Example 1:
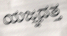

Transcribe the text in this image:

ಯಜ್ಞದತ್ತ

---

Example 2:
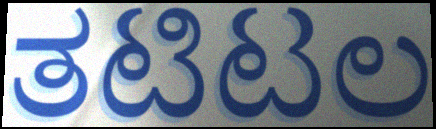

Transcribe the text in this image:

ತಟಿಟಲ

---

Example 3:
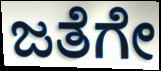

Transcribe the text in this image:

ಜತೆಗೇ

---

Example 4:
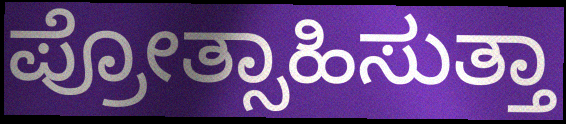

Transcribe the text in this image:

ಪ್ರೋತ್ಸಾಹಿಸುತ್ತಾ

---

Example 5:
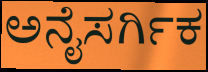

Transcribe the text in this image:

ಅನೈಸರ್ಗಿಕ